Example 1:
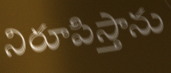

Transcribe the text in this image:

నిరూపిస్తాను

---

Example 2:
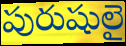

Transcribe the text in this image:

పురుషులై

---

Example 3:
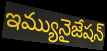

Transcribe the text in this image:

ఇమ్యునైజేషన్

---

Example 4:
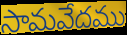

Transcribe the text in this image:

సామవేదము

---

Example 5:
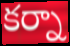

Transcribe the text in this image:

కర్నా